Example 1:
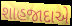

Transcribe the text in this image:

શાહજાદાએ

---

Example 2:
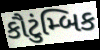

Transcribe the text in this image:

કૌટુંમ્બિક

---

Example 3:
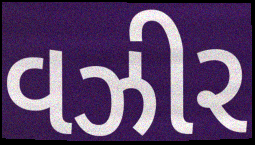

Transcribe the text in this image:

વઝીર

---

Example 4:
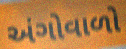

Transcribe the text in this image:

અંગોવાળો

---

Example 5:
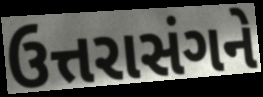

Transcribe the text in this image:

ઉત્તરાસંગને